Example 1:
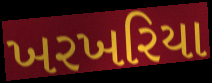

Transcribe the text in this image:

ખરખરિયા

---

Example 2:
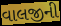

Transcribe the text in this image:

વાલજીની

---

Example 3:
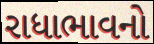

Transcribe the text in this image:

રાધાભાવનો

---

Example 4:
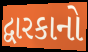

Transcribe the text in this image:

દ્વારકાનો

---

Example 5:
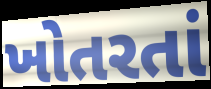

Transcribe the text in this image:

ખોતરતાં